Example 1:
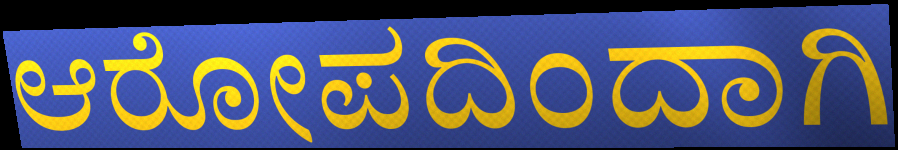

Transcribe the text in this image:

ಆರೋಪದಿಂದಾಗಿ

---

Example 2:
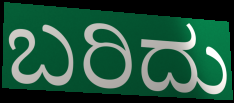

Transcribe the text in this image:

ಬರಿದು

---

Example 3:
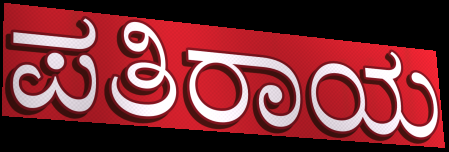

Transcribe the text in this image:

ಪತಿರಾಯ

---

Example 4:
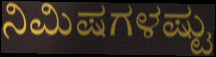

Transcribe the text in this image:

ನಿಮಿಷಗಳಷ್ಟು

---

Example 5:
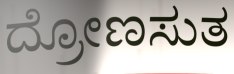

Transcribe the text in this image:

ದ್ರೋಣಸುತ